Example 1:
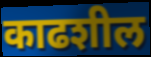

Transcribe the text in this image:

काढशील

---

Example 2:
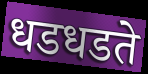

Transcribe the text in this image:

धडधडते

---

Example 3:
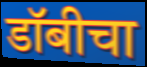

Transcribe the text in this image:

डॉबीचा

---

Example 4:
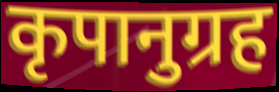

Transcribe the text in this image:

कृपानुग्रह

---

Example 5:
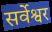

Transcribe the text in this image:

सर्वेश्वर